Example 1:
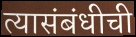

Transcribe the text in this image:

त्यासंबंधीची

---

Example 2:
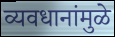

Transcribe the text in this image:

व्यवधानांमुळे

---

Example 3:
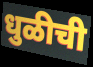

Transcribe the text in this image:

धुळीची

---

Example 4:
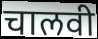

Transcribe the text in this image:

चालवी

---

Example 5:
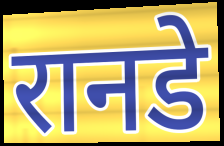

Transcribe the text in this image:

रानडे